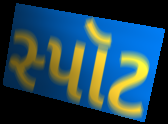
સ્પૉટ